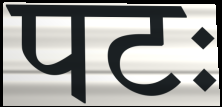
पटः